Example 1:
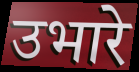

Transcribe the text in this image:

उभारे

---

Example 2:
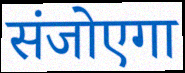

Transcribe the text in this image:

संजोएगा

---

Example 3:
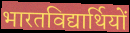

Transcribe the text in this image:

भारतविद्यार्थियों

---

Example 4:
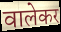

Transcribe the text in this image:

वालेकर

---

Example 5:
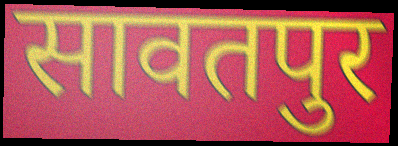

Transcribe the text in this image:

सावतपुर